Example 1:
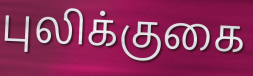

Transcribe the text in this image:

புலிக்குகை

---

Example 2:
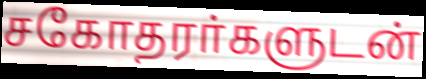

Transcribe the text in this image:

சகோதரர்களுடன்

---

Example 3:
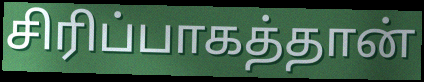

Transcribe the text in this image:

சிரிப்பாகத்தான்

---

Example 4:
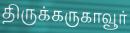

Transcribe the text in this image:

திருக்கருகாவூர்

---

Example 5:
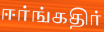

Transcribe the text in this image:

ஈர்ங்கதிர்